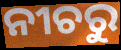
ନୀଚରୁ